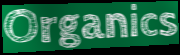
Organics